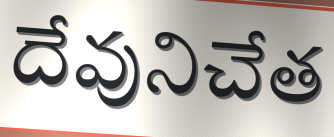
దేవునిచేత